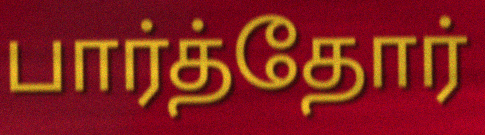
பார்த்தோர்